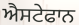
ਐਸਟੇਫਾਨ